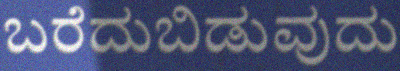
ಬರೆದುಬಿಡುವುದು